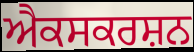
ਐਕਸਕਰਸ਼ਨ